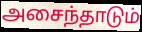
அசைந்தாடும்